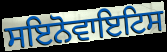
ਸਇਨੋਵਾਇਟਿਸ